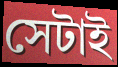
সেটাই